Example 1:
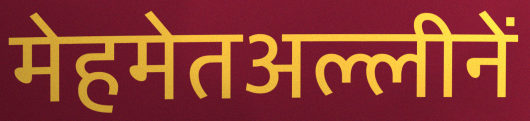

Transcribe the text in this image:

मेहमेतअल्लीनें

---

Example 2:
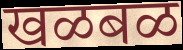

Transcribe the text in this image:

खळबळ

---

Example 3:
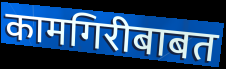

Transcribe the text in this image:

कामगिरीबाबत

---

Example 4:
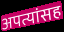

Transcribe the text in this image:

अपत्यांसह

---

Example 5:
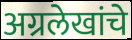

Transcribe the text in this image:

अग्रलेखांचे